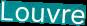
Louvre